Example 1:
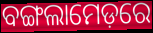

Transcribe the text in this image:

ବଙ୍ଗଲାମେଡ଼ରେ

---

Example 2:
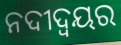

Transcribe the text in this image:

ନଦୀଦ୍ବୟର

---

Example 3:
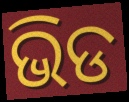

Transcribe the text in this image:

ଭିଡ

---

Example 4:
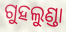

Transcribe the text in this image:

ଗୁହଲୁଣ୍ଡା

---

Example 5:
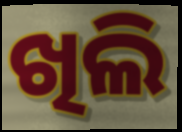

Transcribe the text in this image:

ଖିଲି